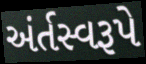
અંર્તસ્વરૂપે